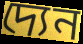
দ্যেন